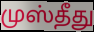
முஸ்தீது